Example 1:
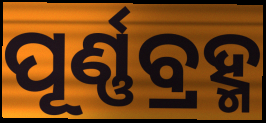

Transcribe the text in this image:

ପୂର୍ଣ୍ଣବ୍ରହ୍ମ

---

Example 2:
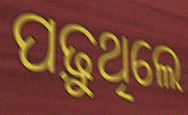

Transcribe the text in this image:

ପଢ଼ୁଥିଲେ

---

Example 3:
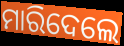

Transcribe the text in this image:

ମାରିଦେଲେ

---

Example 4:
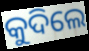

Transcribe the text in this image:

କୁଦିଲେ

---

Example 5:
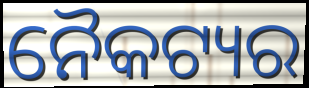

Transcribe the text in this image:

ନୈକଟ୍ୟର